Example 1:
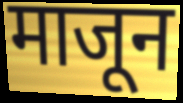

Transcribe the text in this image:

माजून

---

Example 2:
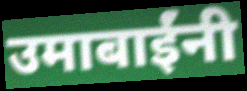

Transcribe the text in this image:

उमाबाईंनी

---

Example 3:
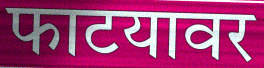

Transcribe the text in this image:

फाटयावर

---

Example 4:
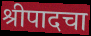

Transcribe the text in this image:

श्रीपादचा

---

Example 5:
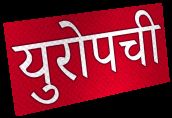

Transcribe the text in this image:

युरोपची